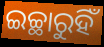
ଇଚ୍ଛାରୁହିଁ